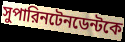
সুপারিনটেনডেন্টকে